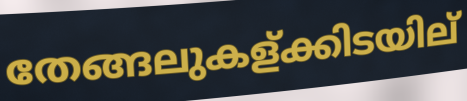
തേങ്ങലുകള്ക്കിടയില്